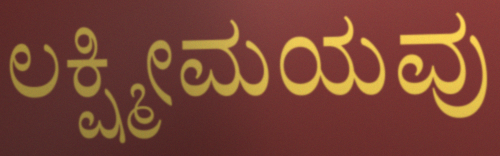
ಲಕ್ಷ್ಮೀಮಯವು